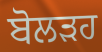
ਬੋਲੜਹ